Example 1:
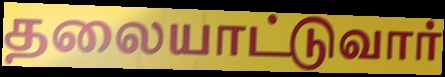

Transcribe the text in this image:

தலையாட்டுவார்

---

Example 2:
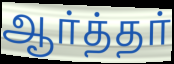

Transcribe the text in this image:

ஆர்த்தர்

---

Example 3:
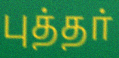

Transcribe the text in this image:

புத்தர்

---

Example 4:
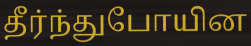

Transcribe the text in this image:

தீர்ந்துபோயின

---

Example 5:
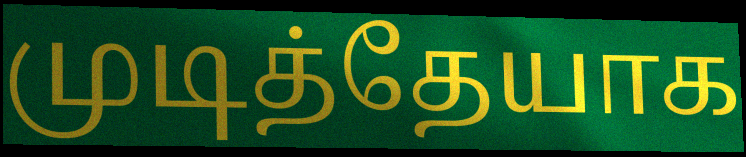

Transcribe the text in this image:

முடித்தேயாக